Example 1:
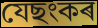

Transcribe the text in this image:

যেছংকৰ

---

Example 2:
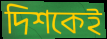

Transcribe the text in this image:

দিশকেই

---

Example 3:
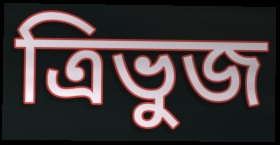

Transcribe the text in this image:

ত্ৰিভুজ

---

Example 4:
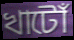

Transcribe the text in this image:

খাটোঁ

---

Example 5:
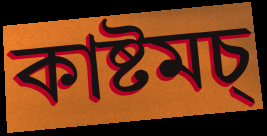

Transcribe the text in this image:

কাষ্টমচ্